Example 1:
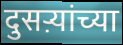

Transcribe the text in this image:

दुसऱ्‍यांच्या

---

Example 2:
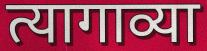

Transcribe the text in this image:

त्यागाव्या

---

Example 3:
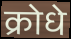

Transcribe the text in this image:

क्रोधे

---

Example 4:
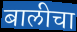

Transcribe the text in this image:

बालीचा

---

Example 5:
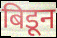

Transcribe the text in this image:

बिडून